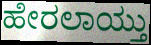
ಹೇರಲಾಯ್ತು